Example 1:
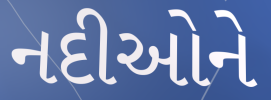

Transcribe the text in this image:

નદીઓને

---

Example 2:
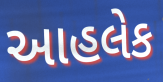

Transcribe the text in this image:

આહલેક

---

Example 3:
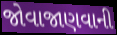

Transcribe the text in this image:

જોવાજાણવાની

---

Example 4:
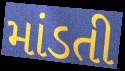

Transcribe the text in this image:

માંડતી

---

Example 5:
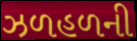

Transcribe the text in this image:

ઝળહળની